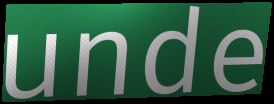
unde